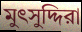
মুৎসুদ্দিরা